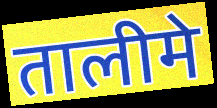
तालीमे